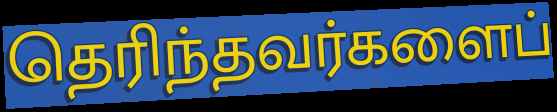
தெரிந்தவர்களைப்